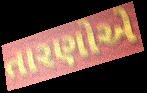
તારણોએ